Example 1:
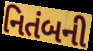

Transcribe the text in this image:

નિતંબની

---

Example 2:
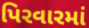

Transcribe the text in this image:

પિરવારમાં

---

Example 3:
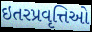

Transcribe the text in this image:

ઇતરપ્રવૃત્તિઓ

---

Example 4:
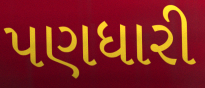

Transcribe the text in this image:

પણધારી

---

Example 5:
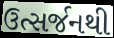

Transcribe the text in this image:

ઉત્સર્જનથી